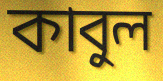
কাবুল